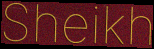
Sheikh